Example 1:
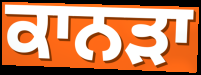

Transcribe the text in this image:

ਕਾਨੜਾ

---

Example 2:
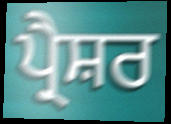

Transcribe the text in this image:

ਪ੍ਰੈਸ਼ਰ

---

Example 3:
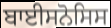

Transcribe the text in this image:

ਬਾਈਸਨੋਸਿਸ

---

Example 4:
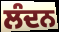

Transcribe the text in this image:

ਲੰਦਨ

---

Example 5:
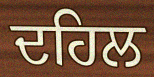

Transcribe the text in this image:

ਦਹਿਲ